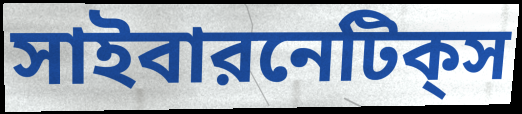
সাইবারনেটিক্‌স